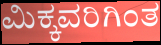
ಮಿಕ್ಕವರಿಗಿಂತ